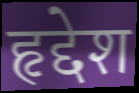
हृद्देश